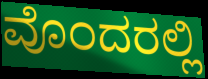
ವೊಂದರಲ್ಲಿ